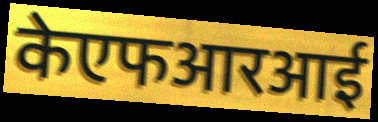
केएफआरआई